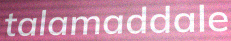
talamaddale